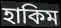
হাকিম